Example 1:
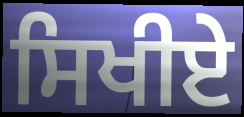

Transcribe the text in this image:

ਸਿਖੀਏ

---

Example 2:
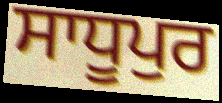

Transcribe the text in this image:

ਸਾਧੂਪੁਰ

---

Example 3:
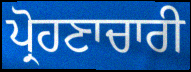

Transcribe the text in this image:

ਪ੍ਰੋਹਣਾਚਾਰੀ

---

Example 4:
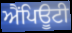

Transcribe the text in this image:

ਐਂਪਿਊਟੀ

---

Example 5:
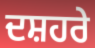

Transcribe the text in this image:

ਦਸ਼ਹਰੇ